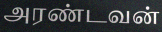
அரண்டவன்